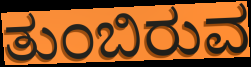
ತುಂಬಿರುವ